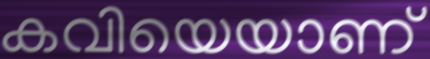
കവിയെയാണ്